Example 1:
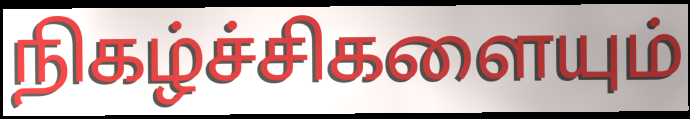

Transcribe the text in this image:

நிகழ்ச்சிகளையும்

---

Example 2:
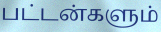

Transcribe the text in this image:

பட்டன்களும்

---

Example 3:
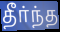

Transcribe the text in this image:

தீர்ந்த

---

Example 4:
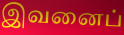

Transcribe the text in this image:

இவனைப்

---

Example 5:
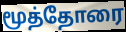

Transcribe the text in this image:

மூத்தோரை